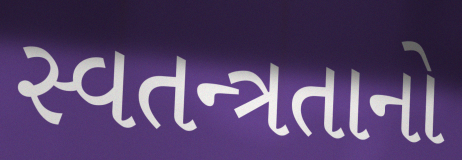
સ્વતન્ત્રતાનો